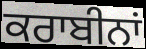
ਕਰਾਬੀਨਾਂ